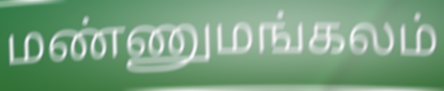
மண்ணுமங்கலம்